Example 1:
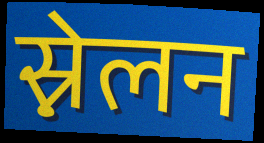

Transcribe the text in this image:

स्नेलन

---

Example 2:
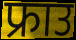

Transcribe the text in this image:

फ्राउ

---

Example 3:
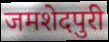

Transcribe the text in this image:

जमशेदपुरी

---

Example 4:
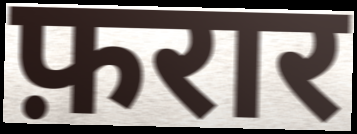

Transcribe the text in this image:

फ़रार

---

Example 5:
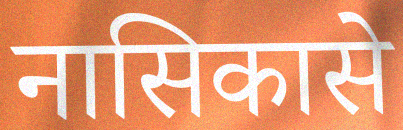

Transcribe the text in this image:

नासिकासे